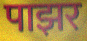
पाझर